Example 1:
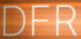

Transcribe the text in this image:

DFR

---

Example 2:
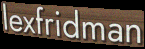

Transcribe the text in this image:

lexfridman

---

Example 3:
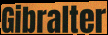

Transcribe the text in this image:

Gibralter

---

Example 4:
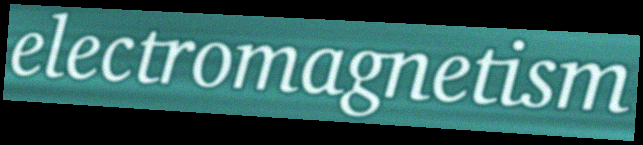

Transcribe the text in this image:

electromagnetism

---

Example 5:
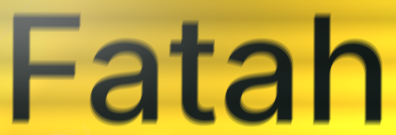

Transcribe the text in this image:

Fatah